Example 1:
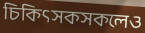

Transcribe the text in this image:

চিকিৎসকসকলেও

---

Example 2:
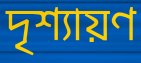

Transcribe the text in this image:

দৃশ্যায়ণ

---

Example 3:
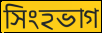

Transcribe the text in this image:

সিংহভাগ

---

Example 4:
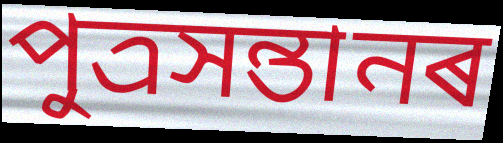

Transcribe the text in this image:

পুত্ৰসন্তানৰ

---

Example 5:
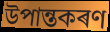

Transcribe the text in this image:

উপান্তকৰণ